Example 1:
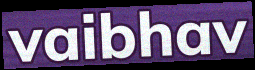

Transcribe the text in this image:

vaibhav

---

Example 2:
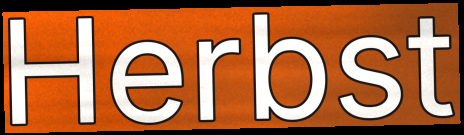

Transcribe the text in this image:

Herbst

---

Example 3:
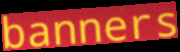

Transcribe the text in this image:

banners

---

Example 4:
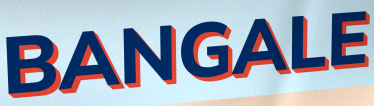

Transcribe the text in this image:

BANGALE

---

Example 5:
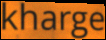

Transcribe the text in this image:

kharge